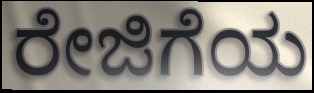
ರೇಜಿಗೆಯ